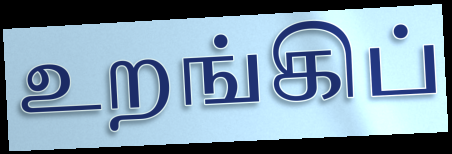
உறங்கிப்